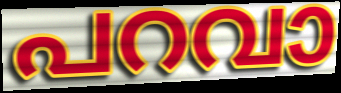
പറവാ